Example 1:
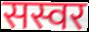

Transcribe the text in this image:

सस्वर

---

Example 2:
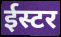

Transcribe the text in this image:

ईस्टर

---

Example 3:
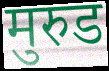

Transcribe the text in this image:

मुरुड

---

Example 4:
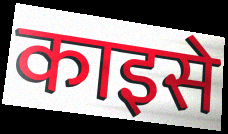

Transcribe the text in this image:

काइसे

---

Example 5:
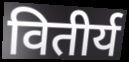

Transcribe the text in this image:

वितीर्य